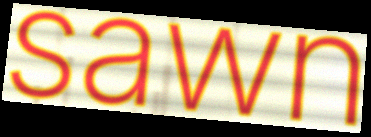
sawn